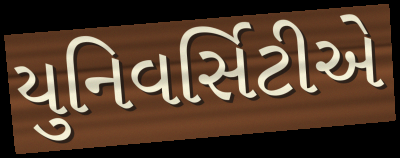
યુનિવર્સિટીએ